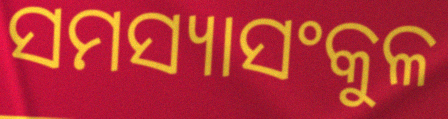
ସମସ୍ୟାସଂକୁଳ